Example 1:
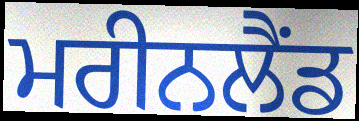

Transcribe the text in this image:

ਮਰੀਨਲੈਂਡ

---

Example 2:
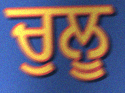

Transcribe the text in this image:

ਚੁਲੂ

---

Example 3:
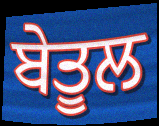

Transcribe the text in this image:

ਬੇਤੂਲ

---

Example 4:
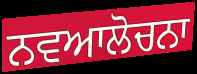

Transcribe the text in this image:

ਨਵਆਲੋਚਨਾ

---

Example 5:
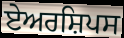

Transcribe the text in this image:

ਏਅਰਸ਼ਿਪਸ